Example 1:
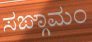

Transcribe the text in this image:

ಸಙ್ಗಾಮಂ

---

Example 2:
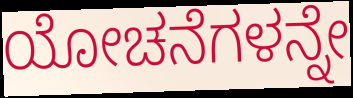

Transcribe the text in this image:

ಯೋಚನೆಗಳನ್ನೇ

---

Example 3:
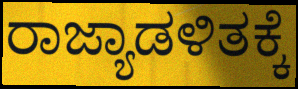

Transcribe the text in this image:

ರಾಜ್ಯಾಡಳಿತಕ್ಕೆ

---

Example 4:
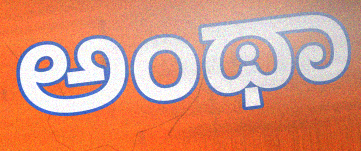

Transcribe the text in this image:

ಅಂಥಾ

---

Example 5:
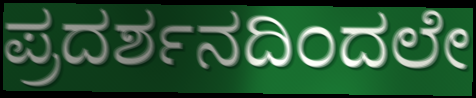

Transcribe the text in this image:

ಪ್ರದರ್ಶನದಿಂದಲೇ